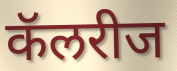
कॅलरीज